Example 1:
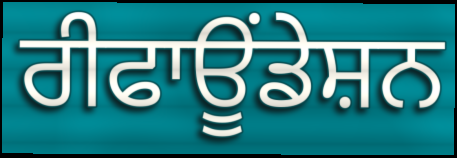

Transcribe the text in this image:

ਰੀਫਾਊਂਡੇਸ਼ਨ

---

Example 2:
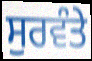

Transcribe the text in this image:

ਸੁਰਵੰਤੇ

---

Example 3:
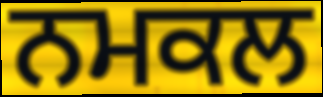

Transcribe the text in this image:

ਨਮਕਲ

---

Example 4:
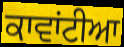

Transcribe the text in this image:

ਕਾਵਾਂਟੀਆ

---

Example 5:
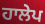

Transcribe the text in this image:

ਹਾਲੇਪ